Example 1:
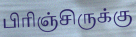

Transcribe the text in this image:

பிரிஞ்சிருக்கு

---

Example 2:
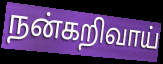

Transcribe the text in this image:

நன்கறிவாய்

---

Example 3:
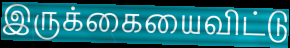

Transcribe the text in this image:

இருக்கையைவிட்டு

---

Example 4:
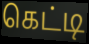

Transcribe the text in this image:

கெட்டி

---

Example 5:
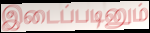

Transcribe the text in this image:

இடைப்படினும்